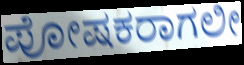
ಪೋಷಕರಾಗಲೀ